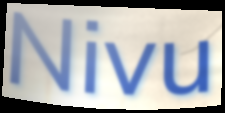
Nivu